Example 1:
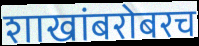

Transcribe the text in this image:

शाखांबरोबरच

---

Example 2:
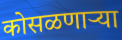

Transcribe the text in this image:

कोसळणार्‍या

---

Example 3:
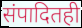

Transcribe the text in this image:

संपादितही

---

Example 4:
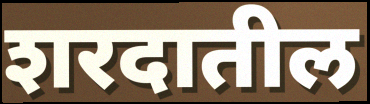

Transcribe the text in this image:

शरदातील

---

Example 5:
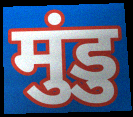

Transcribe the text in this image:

मुंडु